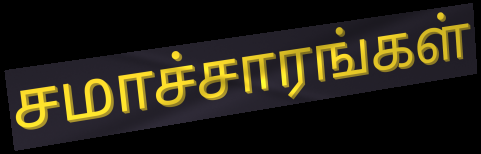
சமாச்சாரங்கள்